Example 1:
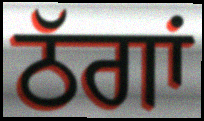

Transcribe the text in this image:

ਠੱਗਾਂ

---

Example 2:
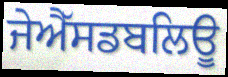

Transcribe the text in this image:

ਜੇਐੱਸਡਬਲਿਊ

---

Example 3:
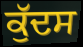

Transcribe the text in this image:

ਕੁੱਦਸ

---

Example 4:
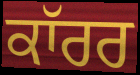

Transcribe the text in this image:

ਕਾੱਰਰ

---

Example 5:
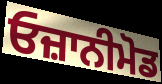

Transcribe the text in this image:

ਓਜ਼ਾਨੀਮੋਡ